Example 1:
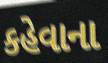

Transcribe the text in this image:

કહેવાના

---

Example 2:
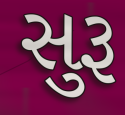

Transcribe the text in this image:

સુરૂ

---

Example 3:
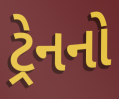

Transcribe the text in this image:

ટ્રેનનો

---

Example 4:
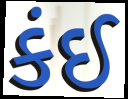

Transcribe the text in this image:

કંઈ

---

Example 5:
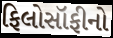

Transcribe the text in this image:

ફિલોસૉફીનો